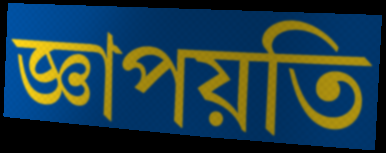
জ্ঞাপয়তি